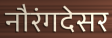
नौरंगदेसर